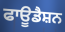
ਫਾਊਡੈਸ਼ਨ